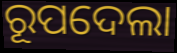
ରୂପଦେଲା